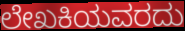
ಲೇಖಕಿಯವರದು